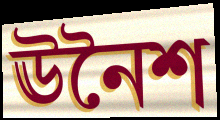
ঊনৈশ